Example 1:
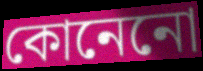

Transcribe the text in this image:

কোনেনো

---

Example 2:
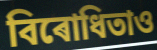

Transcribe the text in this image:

বিৰোধিতাও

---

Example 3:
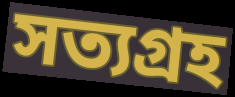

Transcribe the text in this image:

সত্যগ্ৰহ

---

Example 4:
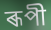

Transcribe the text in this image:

ৰূপী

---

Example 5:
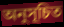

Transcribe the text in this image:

অনুসূচিত